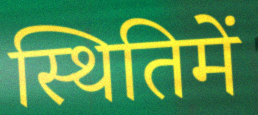
स्थितिमें